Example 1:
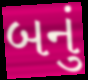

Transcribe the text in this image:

બનું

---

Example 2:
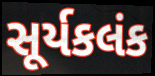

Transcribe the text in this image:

સૂર્યકલંક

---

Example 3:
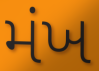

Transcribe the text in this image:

મંખ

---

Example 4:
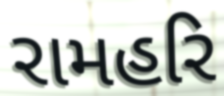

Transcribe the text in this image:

રામહરિ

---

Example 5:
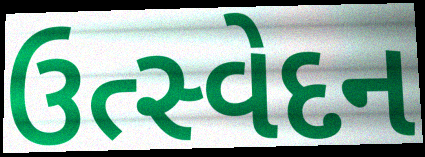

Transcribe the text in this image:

ઉત્સ્વેદન